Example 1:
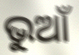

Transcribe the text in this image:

ଭୁଆଁ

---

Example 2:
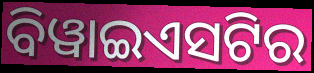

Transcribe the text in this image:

ବିୱାଇଏସଟିର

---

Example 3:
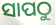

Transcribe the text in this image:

ସାପଠୁ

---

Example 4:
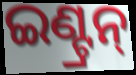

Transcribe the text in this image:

ଇଣ୍ଟ୍ରନ୍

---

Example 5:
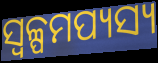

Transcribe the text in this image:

ସ୍ୱଳ୍ପମପ୍ୟସ୍ୟ